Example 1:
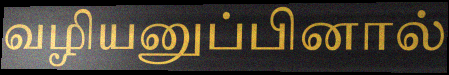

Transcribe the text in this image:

வழியனுப்பினால்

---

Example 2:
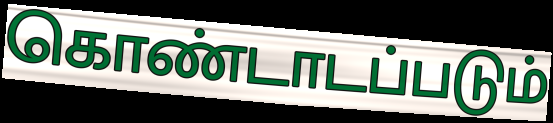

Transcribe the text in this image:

கொண்டாடப்படும்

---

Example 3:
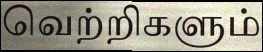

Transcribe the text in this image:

வெற்றிகளும்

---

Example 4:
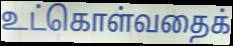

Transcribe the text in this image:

உட்கொள்வதைக்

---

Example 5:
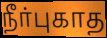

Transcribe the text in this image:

நீர்புகாத